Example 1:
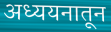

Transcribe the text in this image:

अध्ययनातून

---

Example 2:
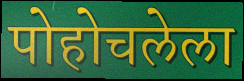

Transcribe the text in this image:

पोहोचलेला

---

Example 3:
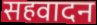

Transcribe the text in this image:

सहवादन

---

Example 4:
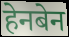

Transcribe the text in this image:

हेनबेन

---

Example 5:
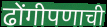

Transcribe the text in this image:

ढोंगीपणाची